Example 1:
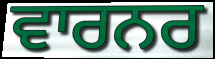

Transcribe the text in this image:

ਵਾਰਨਰ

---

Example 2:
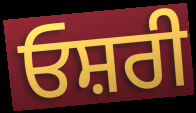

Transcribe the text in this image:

ਓਸ਼ਰੀ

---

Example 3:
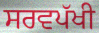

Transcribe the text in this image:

ਸਰਵਪੱਖੀ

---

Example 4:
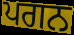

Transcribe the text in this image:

ਪਗਨ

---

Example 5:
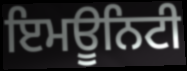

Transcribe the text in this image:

ਇਮਊਨਿਟੀ